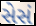
સેસં